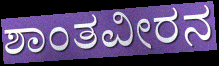
ಶಾಂತವೀರನ